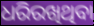
ଧରିରଖିଥିବା